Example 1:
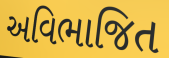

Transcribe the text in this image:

અવિભાજિત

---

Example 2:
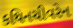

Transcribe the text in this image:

કથિનચીવરેન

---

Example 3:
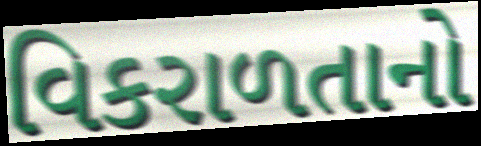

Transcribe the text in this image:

વિકરાળતાનો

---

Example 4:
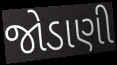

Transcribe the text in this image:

જોડાણી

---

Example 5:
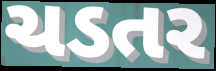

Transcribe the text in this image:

ચડતર